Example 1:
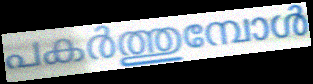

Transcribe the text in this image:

പകർത്തുമ്പോൾ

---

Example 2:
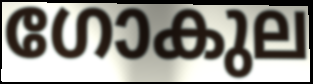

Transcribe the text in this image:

ഗോകുല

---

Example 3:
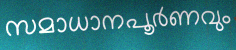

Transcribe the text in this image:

സമാധാനപൂർണവും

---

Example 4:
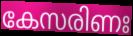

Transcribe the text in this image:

കേസരിണഃ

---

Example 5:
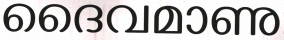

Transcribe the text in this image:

ദൈവമാണു